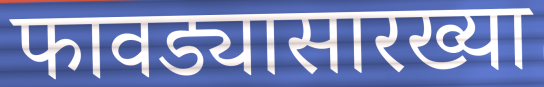
फावड्यासारख्या